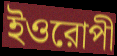
ইওরোপী